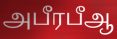
அபீரபீஆ